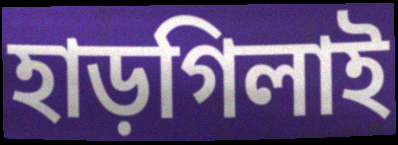
হাড়গিলাই